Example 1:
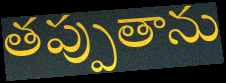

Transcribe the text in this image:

తప్పుతాను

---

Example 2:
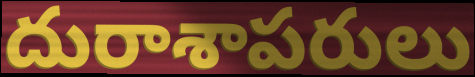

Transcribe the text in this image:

దురాశాపరులు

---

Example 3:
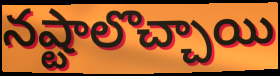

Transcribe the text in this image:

నష్టాలొచ్చాయి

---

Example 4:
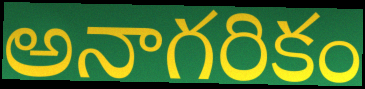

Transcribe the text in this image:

అనాగరికం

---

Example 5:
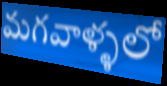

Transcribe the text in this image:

మగవాళ్ళలో